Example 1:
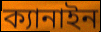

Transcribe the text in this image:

ক্যানাইন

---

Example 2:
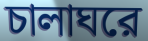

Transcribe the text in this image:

চালাঘরে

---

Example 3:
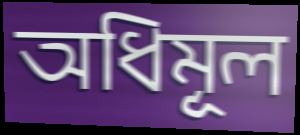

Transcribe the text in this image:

অধিমূল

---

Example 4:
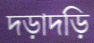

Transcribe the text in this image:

দড়াদড়ি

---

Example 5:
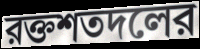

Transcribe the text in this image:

রক্তশতদলের